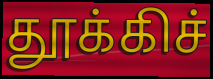
தூக்கிச்